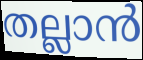
തല്ലാൻ